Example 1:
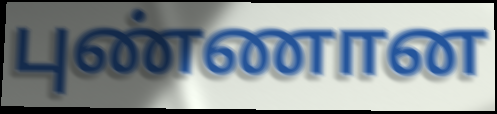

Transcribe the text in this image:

புண்ணான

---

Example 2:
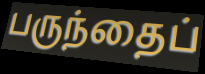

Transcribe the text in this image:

பருந்தைப்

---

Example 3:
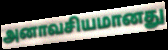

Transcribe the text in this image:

அனாவசியமானது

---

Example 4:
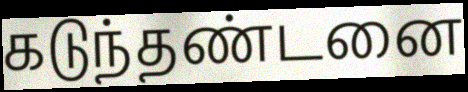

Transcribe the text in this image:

கடுந்தண்டனை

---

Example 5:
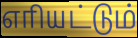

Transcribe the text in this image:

எரியட்டும்